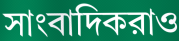
সাংবাদিকরাও